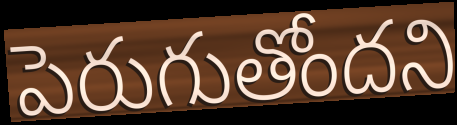
పెరుగుతోందని